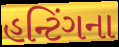
હન્ટિંગના